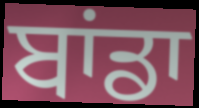
ਬਾਂਡਾ